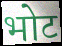
भोट